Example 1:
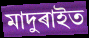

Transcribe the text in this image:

মাদুৰাইত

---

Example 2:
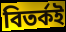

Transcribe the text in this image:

বিতৰ্কই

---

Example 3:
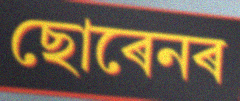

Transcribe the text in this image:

ছোৰেনৰ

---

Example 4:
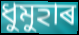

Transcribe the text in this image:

ধুমুহাৰ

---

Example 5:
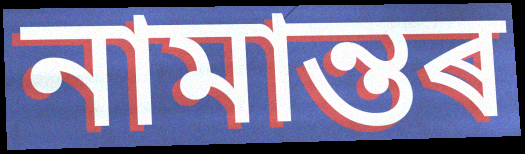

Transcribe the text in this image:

নামান্তৰ